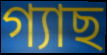
গ্যাছ